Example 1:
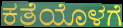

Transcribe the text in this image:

ಕತೆಯೊಳಗೆ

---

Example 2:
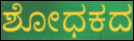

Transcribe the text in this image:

ಶೋಧಕದ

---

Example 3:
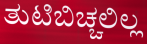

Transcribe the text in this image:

ತುಟಿಬಿಚ್ಚಲಿಲ್ಲ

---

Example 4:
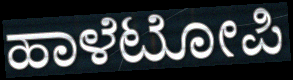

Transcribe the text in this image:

ಹಾಳೆಟೋಪಿ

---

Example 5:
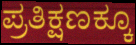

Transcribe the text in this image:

ಪ್ರತಿಕ್ಷಣಕ್ಕೂ